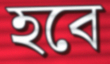
হবে